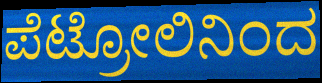
ಪೆಟ್ರೋಲಿನಿಂದ